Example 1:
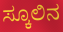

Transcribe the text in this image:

ಸ್ಕೂಲಿನ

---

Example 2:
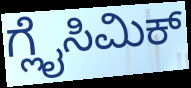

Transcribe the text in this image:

ಗ್ಲೈಸಿಮಿಕ್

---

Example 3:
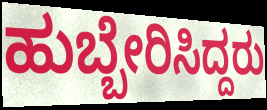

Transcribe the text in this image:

ಹುಬ್ಬೇರಿಸಿದ್ದರು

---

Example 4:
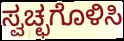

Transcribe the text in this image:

ಸ್ವಚ್ಛಗೊಳಿಸಿ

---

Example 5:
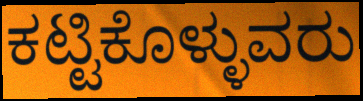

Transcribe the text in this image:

ಕಟ್ಟಿಕೊಳ್ಳುವರು